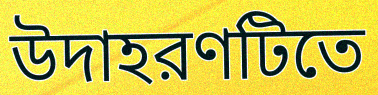
উদাহরণটিতে